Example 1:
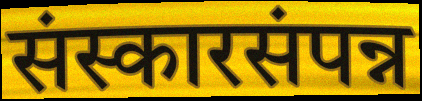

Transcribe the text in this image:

संस्कारसंपन्न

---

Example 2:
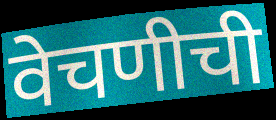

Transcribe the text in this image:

वेचणीची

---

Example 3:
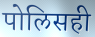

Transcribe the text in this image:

पोलिसही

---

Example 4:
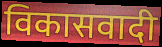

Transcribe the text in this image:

विकासवादी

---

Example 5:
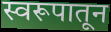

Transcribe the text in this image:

स्वरूपातून